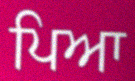
ਪਿਆ